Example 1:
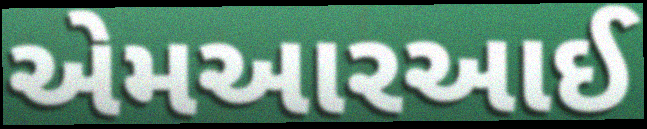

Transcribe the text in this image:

એમઆરઆઈ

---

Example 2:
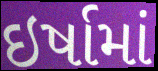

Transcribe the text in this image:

ઇર્ષામાં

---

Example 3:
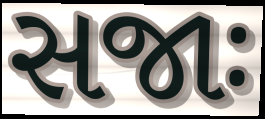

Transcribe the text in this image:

સજાઃ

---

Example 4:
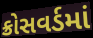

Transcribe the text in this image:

ક્રોસવર્ડમાં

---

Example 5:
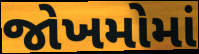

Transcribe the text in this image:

જોખમોમાં